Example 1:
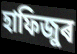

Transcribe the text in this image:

হাফিজুৰ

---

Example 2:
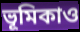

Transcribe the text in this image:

ভূমিকাও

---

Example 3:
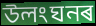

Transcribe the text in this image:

উলংঘনৰ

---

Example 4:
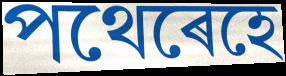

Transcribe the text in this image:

পথেৰেহে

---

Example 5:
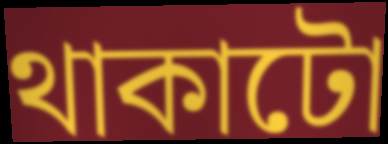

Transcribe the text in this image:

থাকাটো